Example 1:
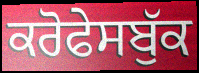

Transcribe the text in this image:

ਕਰੋਫੇਸਬੁੱਕ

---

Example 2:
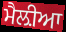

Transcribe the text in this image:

ਮੈਲ਼ੀਆ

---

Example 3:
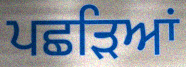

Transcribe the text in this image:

ਪਛੜਿਆਂ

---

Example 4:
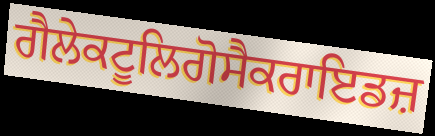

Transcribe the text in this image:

ਗੈਲੇਕਟੂਲਿਗੋਸੈਕਰਾਇਡਜ਼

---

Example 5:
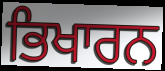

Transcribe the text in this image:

ਭਿਖਾਰਨ